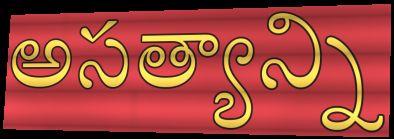
అసత్యాన్ని